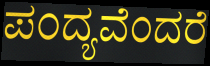
ಪಂದ್ಯವೆಂದರೆ